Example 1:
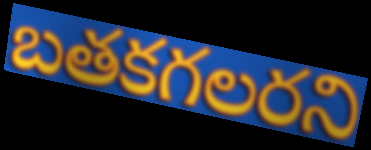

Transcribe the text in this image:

బతకగలరని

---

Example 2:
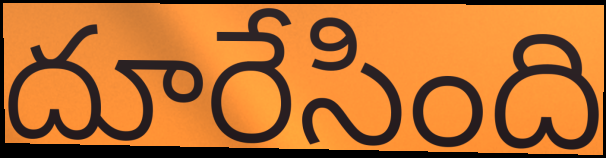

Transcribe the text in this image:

దూరేసింది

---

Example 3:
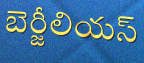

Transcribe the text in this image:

బెర్జీలియస్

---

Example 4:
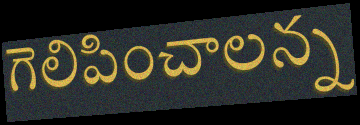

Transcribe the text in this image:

గెలిపించాలన్న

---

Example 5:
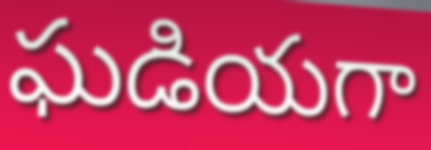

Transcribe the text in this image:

ఘడియగా